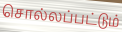
சொல்லப்பட்டும்